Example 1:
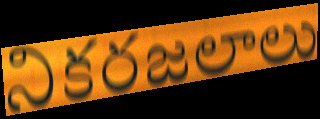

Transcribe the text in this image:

నికరజలాలు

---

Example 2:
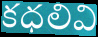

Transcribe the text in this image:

కధలివి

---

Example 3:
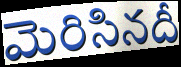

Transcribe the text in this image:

మెరిసినదీ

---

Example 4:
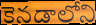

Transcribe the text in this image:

కెనడాలోని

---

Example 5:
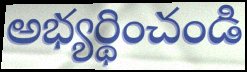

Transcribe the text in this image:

అభ్యర్థించండి